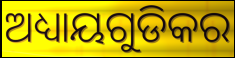
ଅଧ୍ୟାୟଗୁଡିକର